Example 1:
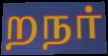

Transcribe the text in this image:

றநர்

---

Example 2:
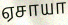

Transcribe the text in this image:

ஏசாயா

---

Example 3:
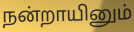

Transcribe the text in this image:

நன்றாயினும்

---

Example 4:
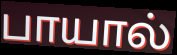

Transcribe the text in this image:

பாயால்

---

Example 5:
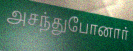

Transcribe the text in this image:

அசந்துபோனார்